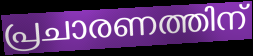
പ്രചാരണത്തിന്